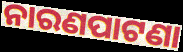
ନାରଣପାଟଣା